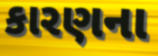
કારણના